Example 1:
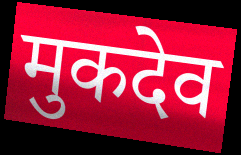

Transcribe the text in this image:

मुकदेव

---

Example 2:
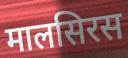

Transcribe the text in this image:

मालसिरस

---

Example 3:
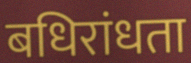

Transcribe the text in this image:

बधिरांधता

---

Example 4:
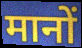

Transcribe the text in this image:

मानों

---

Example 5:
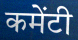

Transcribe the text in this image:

कमेंटी